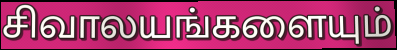
சிவாலயங்களையும்